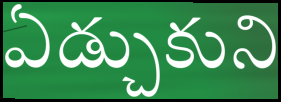
ఏడ్చుకుని